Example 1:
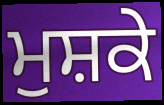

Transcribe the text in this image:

ਮੁਸ਼ਕੇ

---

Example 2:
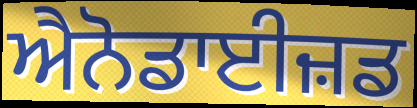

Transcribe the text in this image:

ਐਨੋਡਾਈਜ਼ਡ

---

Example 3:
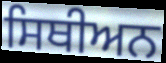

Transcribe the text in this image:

ਸਿਥੀਅਨ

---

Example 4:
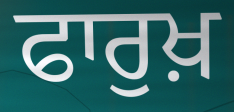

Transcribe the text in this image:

ਫਾਰੁਖ਼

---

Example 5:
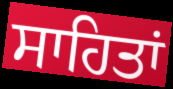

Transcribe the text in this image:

ਸਾਹਿਤਾਂ